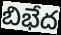
బిభేద